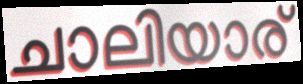
ചാലിയാര്